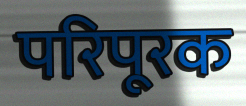
परिपूरक